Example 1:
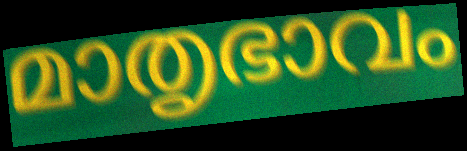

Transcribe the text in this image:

മാതൃഭാവം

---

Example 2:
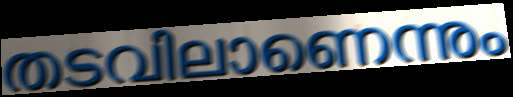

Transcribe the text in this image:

തടവിലാണെന്നും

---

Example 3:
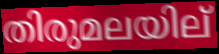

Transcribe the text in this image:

തിരുമലയില്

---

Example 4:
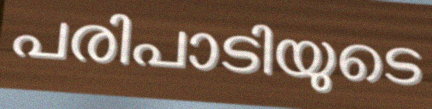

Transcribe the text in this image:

പരിപാടിയുടെ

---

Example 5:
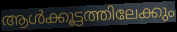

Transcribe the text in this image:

ആൾക്കൂട്ടത്തിലേക്കും